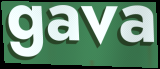
gava